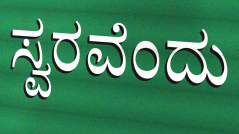
ಸ್ವರವೆಂದು